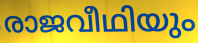
രാജവീഥിയും